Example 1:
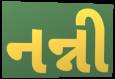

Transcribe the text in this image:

નન્ની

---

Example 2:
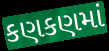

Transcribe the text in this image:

કણકણમાં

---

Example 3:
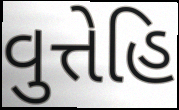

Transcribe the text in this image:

વુત્તેહિ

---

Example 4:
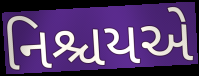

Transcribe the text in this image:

નિશ્ચયએ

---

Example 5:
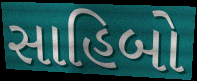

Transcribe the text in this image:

સાહિબો